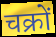
चक्रों